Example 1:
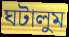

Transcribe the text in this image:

ঘটালুম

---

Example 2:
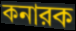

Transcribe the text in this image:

কনারক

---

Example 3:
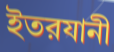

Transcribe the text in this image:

ইতরযানী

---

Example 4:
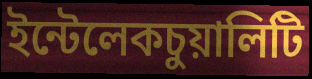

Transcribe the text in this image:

ইন্টেলেকচুয়ালিটি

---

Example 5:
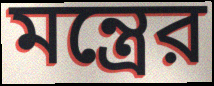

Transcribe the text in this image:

মন্ত্রের